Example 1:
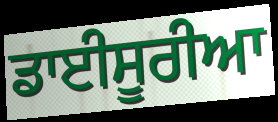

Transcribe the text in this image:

ਡਾਈਸੂਰੀਆ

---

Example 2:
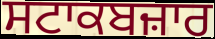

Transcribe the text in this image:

ਸਟਾਕਬਜ਼ਾਰ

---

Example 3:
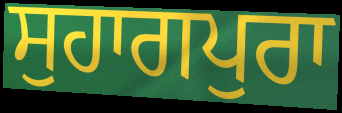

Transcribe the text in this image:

ਸੁਹਾਗਪੁਰਾ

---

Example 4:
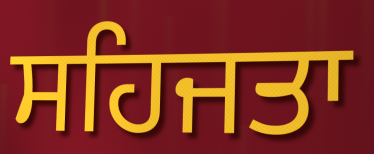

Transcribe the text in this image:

ਸਹਿਜਤਾ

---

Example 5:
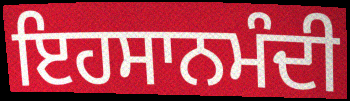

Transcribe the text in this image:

ਇਹਸਾਨਮੰਦੀ